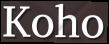
Koho